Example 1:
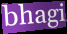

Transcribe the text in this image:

bhagi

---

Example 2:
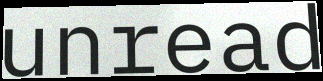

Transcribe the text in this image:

unread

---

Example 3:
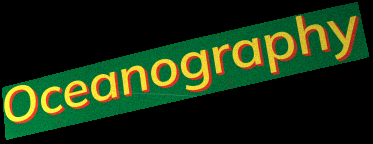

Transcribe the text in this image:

Oceanography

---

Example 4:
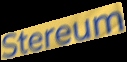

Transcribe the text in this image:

Stereum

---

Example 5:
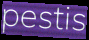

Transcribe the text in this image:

pestis